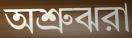
অশ্রুঝরা